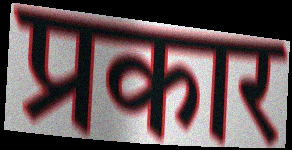
प्रकार